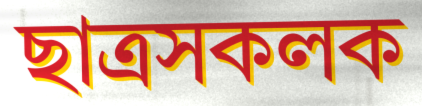
ছাত্ৰসকলক